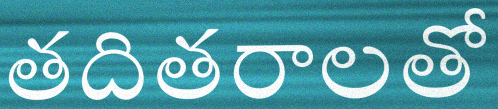
తదితరాలతో